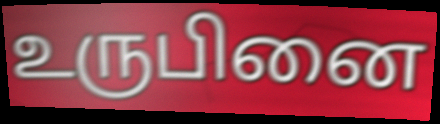
உருபினை